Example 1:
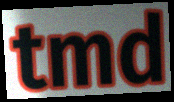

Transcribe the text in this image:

tmd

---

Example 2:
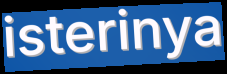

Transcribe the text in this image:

isterinya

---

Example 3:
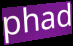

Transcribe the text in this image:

phad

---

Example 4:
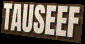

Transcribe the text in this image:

TAUSEEF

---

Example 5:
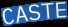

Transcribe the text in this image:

CASTE